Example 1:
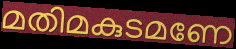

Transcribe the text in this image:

മതിമകുടമണേ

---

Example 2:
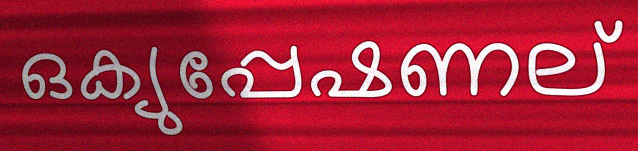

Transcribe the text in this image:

ഒക്യുപ്പേഷണല്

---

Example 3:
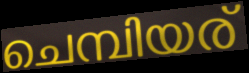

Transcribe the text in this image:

ചെമ്പിയര്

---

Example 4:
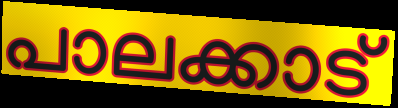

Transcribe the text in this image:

പാലക്കാട്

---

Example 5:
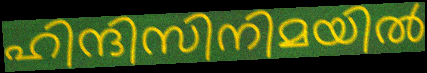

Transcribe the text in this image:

ഹിന്ദിസിനിമയിൽ